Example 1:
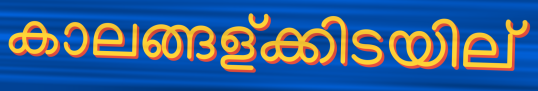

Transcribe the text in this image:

കാലങ്ങള്ക്കിടയില്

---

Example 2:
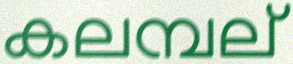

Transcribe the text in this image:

കലമ്പല്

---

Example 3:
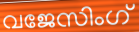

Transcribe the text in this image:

വജേസിംഗ്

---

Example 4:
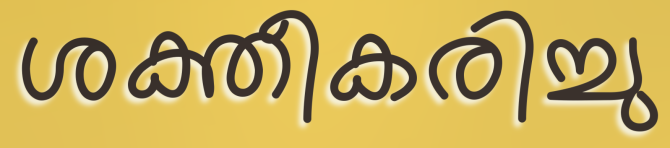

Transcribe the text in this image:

ശക്തീകരിച്ചു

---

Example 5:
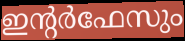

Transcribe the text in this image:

ഇന്റർഫേസും